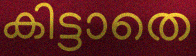
കിട്ടാതെ